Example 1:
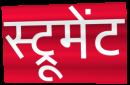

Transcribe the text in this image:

स्ट्रूमेंट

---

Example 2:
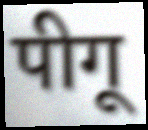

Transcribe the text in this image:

पीगू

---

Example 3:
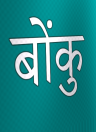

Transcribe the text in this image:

बोंकु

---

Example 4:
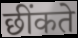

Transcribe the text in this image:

छींकते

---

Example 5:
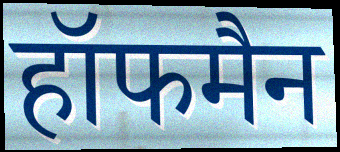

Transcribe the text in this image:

हॉफमैन